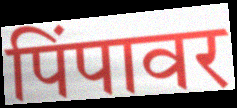
पिंपावर